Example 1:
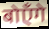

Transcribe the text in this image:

बोएँगे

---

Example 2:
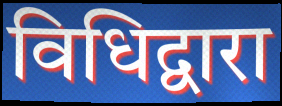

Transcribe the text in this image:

विधिद्वारा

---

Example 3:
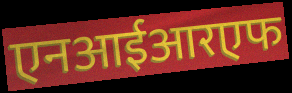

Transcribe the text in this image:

एनआईआरएफ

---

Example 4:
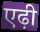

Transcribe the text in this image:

एढ़ी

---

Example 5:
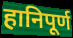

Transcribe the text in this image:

हानिपूर्ण